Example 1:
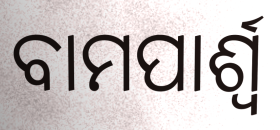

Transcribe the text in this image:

ବାମପାର୍ଶ୍ଵ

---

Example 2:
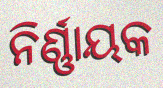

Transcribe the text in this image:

ନିର୍ଣ୍ଣାୟକ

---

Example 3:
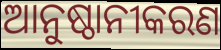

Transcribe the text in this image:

ଆନୁଷ୍ଠାନୀକରଣ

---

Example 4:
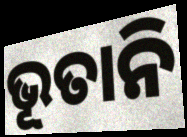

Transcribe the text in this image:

ଭୂତାନି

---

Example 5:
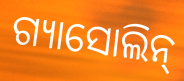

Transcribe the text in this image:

ଗ୍ୟାସୋଲିନ୍